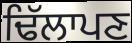
ਢਿੱਲਾਪਣ